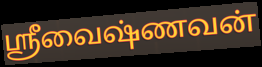
ஸ்ரீவைஷ்ணவன்